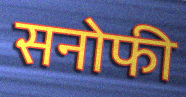
सनोफी